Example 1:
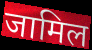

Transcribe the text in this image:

जामिल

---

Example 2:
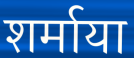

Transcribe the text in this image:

शर्माया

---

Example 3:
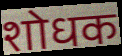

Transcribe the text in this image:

शोधक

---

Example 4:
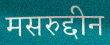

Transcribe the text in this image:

मसरुद्दीन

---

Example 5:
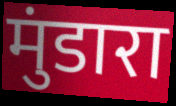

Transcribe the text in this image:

मुंडारा